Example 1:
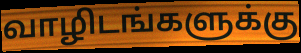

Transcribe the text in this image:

வாழிடங்களுக்கு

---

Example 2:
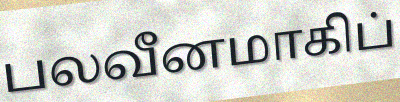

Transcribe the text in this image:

பலவீனமாகிப்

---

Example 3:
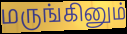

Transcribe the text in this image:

மருங்கினும்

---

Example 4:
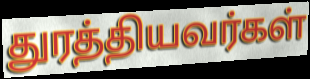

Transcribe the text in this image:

துரத்தியவர்கள்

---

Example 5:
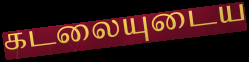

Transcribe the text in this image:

கடலையுடைய